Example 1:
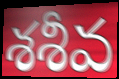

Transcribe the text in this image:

శశీవ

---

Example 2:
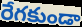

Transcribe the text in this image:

రేగకుండా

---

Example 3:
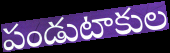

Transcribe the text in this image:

పండుటాకుల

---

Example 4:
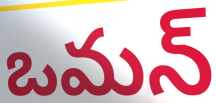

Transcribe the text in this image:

ఒమన్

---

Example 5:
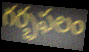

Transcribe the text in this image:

గర్భఫలం